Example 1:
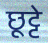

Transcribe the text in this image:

छूट्टे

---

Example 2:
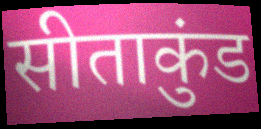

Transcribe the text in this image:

सीताकुंड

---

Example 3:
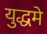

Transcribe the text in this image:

युद्धमे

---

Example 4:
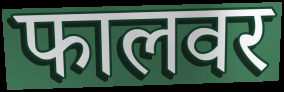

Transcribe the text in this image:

फालवर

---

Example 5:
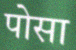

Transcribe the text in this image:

पोसा